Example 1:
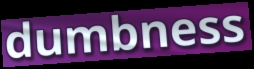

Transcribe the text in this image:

dumbness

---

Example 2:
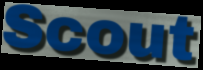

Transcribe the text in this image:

Scout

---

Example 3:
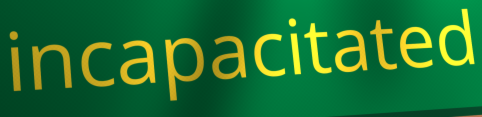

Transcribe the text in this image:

incapacitated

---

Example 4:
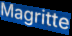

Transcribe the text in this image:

Magritte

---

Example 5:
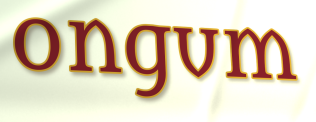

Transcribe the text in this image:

ongum